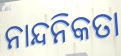
ନାନ୍ଦନିକତା